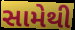
સામેથી